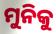
ମୁନିକୁ